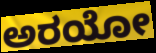
ಅರಯೋ